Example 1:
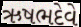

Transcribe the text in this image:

ઋષભદેવે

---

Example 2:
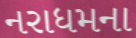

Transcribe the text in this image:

નરાધમના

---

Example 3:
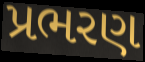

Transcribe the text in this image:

પ્રભરણ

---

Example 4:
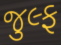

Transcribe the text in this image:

જુલ્ફ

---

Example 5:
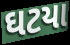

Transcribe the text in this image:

ઘટયા